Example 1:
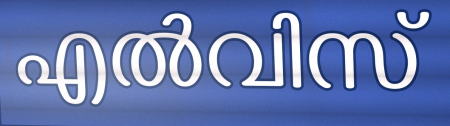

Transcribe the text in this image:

എൽവിസ്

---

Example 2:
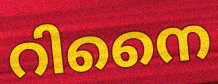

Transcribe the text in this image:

റിനൈ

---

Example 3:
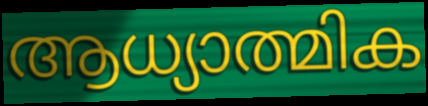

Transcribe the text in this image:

ആധ്യാത്മിക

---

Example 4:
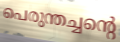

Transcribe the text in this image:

പെരുന്തച്ചന്റെ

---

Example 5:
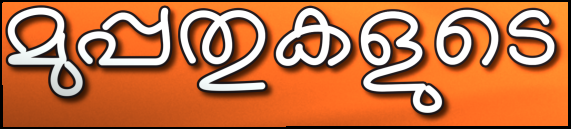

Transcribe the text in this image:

മുപ്പതുകളുടെ